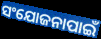
ସଂଯୋଜନାପାଇଁ